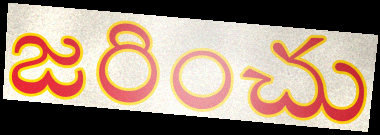
జరించు